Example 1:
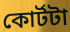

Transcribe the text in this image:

কোর্টটা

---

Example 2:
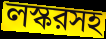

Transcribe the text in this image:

লস্করসহ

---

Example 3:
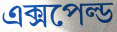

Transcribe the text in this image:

এক্সপেল্ড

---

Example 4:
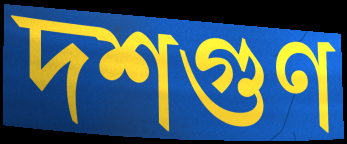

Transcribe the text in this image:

দশগুণ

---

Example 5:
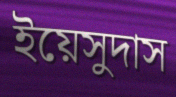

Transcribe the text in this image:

ইয়েসুদাস